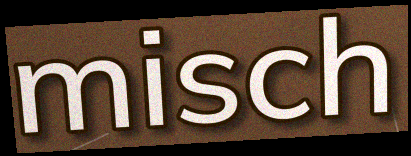
misch